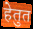
हेतुत